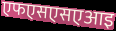
एफएसएसएआइ